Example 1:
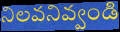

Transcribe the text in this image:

నిలవనివ్వండి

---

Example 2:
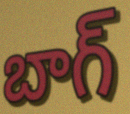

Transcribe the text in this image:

బాగ్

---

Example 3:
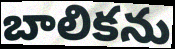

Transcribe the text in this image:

బాలికను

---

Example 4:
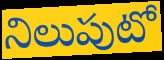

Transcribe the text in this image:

నిలుపుటో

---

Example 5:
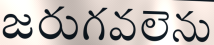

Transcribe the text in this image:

జరుగవలెను